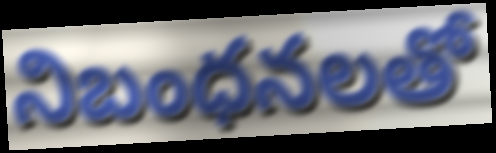
నిబంధనలతో